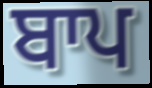
ਬਾਪ